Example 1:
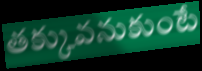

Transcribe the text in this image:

తక్కువనుకుంటే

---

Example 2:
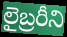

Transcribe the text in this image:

లైబ్రరీని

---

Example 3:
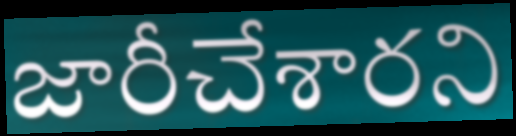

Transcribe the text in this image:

జారీచేశారని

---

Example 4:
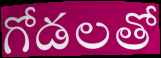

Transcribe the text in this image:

గోడలతో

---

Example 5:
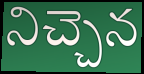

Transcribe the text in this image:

నిచ్చెన